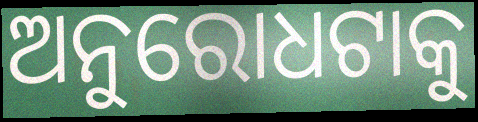
ଅନୁରୋଧଟାକୁ